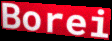
Borei